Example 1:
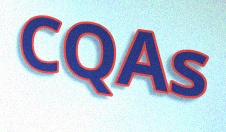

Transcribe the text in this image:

CQAs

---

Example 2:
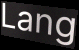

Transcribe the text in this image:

Lang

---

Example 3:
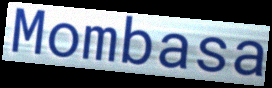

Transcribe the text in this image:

Mombasa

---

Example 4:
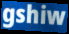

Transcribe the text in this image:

gshiw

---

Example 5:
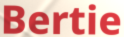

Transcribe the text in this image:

Bertie